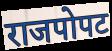
राजपोपट